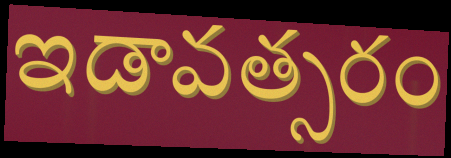
ఇడావత్సరం